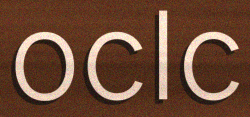
oclc